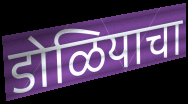
डोळियाचा